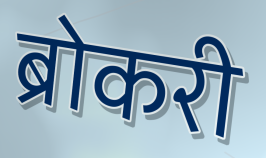
ब्रोकरी